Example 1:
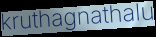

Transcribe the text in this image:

kruthagnathalu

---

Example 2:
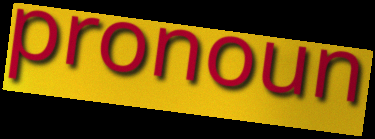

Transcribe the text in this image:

pronoun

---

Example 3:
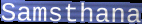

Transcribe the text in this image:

Samsthana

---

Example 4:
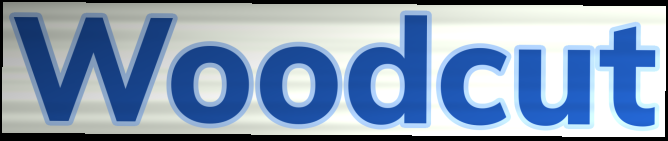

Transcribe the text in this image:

Woodcut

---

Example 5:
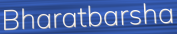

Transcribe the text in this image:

Bharatbarsha